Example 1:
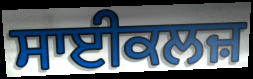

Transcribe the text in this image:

ਸਾਈਕਲਜ਼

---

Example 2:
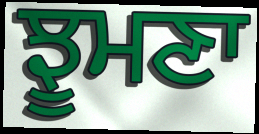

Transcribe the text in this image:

ਝੂਮਣਾ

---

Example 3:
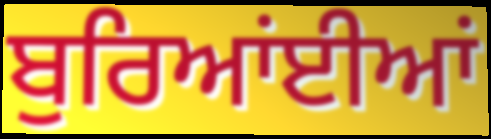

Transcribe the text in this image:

ਬੁਰਿਆਂਈਆਂ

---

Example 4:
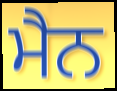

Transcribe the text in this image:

ਮੈਨ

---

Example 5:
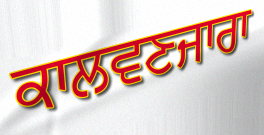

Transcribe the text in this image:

ਕਾਲਵਣਜਾਰਾ